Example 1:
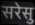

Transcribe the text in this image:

सरेसु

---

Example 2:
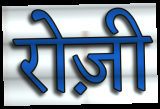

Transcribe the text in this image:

रोज़ी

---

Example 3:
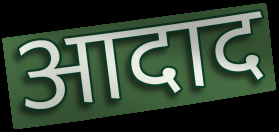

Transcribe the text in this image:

आदाद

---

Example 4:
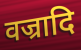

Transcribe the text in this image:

वज्रादि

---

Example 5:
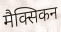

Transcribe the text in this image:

मैक्सिकन